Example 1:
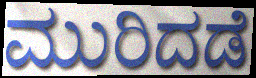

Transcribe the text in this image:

ಮುರಿದಡೆ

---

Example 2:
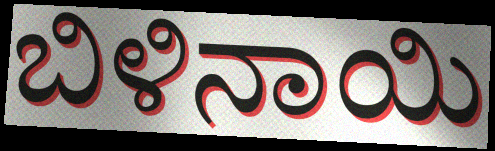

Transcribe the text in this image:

ಬಿಳಿನಾಯಿ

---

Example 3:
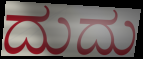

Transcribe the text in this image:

ದುದು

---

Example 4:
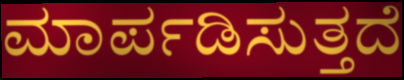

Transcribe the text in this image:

ಮಾರ್ಪಡಿಸುತ್ತದೆ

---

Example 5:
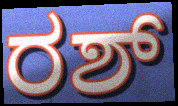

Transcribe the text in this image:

ರಶ್